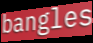
bangles